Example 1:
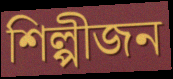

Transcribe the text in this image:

শিল্পীজন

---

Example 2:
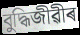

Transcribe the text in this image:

বুদ্ধিজীৱীৰ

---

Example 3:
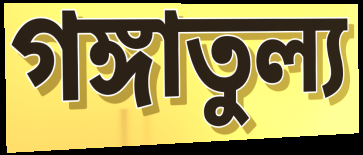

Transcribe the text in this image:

গঙ্গাতুল্য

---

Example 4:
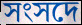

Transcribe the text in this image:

সংসদে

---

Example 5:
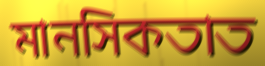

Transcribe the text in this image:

মানসিকতাত